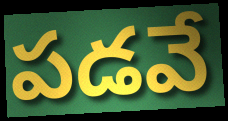
పడవే